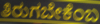
ತಿರುಗಬೇಕೆಂಬ